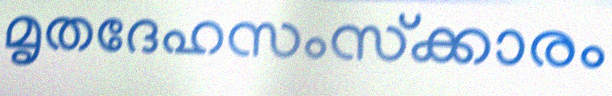
മൃതദേഹസംസ്‌ക്കാരം